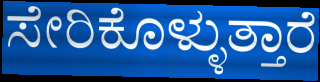
ಸೇರಿಕೊಳ್ಳುತ್ತಾರೆ